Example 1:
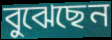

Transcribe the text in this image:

বুঝেছেন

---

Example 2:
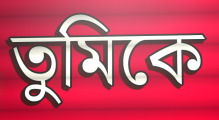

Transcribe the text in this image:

তুমিকে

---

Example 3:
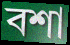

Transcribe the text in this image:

বশা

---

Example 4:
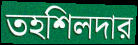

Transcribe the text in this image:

তহশিলদার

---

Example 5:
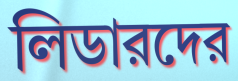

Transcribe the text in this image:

লিডারদের